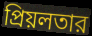
প্রিয়লতার